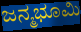
ಜನ್ಮಭೂಮಿ